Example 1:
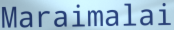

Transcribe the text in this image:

Maraimalai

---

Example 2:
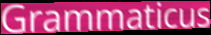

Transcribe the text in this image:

Grammaticus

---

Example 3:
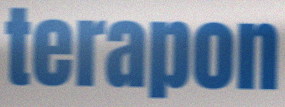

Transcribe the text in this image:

terapon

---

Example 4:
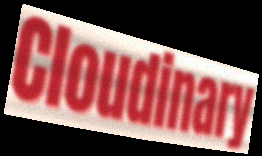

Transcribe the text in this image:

Cloudinary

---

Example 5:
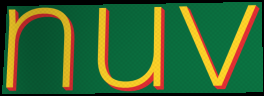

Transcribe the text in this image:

nuv